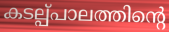
കടല്പ്പാലത്തിന്റെ